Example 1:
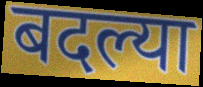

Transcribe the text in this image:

बदल्या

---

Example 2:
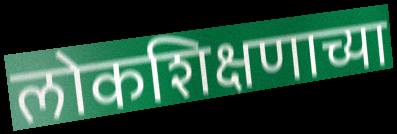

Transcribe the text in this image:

लोकशिक्षणाच्या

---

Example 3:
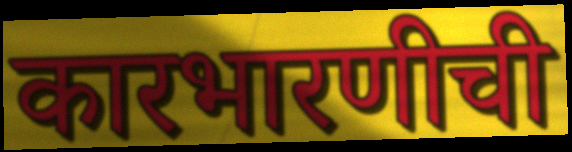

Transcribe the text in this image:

कारभारणीची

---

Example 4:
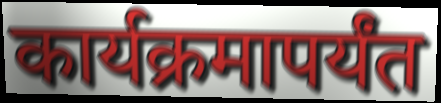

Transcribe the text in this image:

कार्यक्रमापर्यंत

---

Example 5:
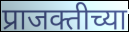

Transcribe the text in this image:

प्राजक्तीच्या